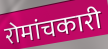
रोमांचकारी